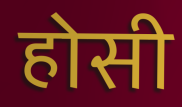
होसी